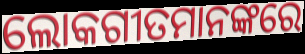
ଲୋକଗୀତମାନଙ୍କରେ